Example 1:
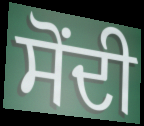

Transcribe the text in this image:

ਸੋਂਦੀ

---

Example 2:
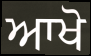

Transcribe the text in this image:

ਆਖੋ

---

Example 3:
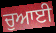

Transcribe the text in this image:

ਚੁਆਈ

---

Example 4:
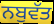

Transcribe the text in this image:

ਨਬੁਵੱਤ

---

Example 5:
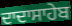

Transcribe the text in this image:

ਦਾਦਾਸਾਹੇਬ